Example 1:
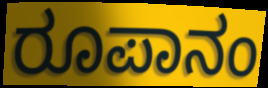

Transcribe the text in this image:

ರೂಪಾನಂ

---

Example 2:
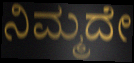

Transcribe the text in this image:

ನಿಮ್ಮದೇ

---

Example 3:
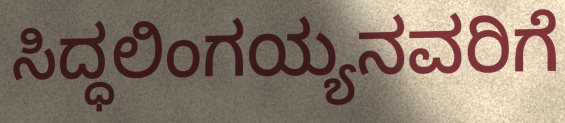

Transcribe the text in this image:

ಸಿದ್ಧಲಿಂಗಯ್ಯನವರಿಗೆ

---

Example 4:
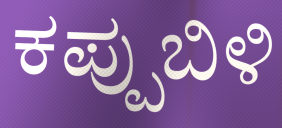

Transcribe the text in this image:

ಕಪ್ಪುಬಿಳಿ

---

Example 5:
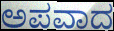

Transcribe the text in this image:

ಅಪವಾದ